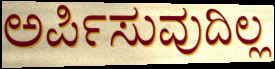
ಅರ್ಪಿಸುವುದಿಲ್ಲ